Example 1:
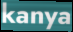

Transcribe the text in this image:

kanya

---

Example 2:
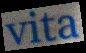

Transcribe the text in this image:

vita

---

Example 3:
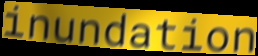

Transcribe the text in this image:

inundation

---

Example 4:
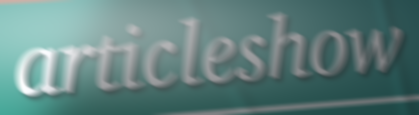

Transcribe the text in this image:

articleshow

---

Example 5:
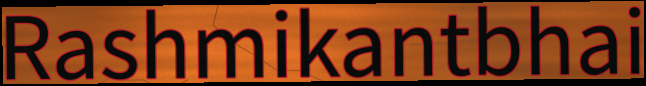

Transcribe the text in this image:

Rashmikantbhai